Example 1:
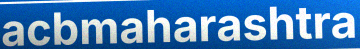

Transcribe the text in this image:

acbmaharashtra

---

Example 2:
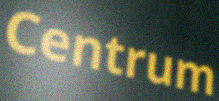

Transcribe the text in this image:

Centrum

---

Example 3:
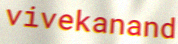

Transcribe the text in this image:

vivekanand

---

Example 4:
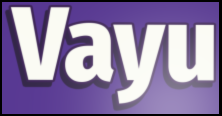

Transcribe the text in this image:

Vayu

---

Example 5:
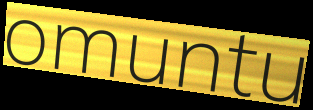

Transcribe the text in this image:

omuntu